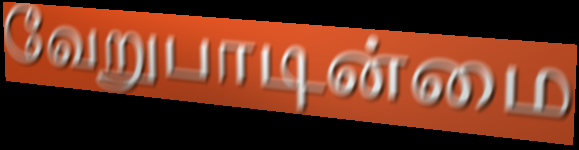
வேறுபாடின்மை